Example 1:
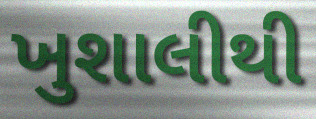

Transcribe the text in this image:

ખુશાલીથી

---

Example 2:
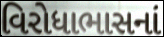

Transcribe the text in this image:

વિરોધાભાસનાં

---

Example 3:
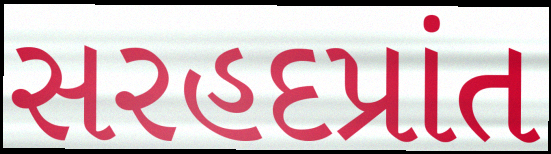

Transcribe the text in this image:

સરહદપ્રાંત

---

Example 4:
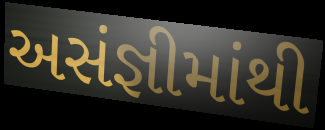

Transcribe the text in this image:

અસંજ્ઞીમાંથી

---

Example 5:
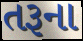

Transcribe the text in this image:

તરૂના